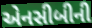
એનસીબીની